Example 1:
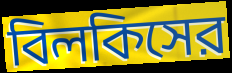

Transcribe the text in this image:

বিলকিসের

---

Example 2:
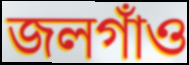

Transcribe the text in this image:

জলগাঁও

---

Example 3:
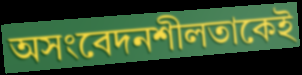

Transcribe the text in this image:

অসংবেদনশীলতাকেই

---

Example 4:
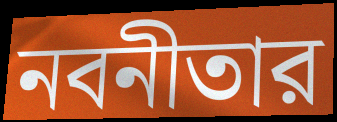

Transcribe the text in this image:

নবনীতার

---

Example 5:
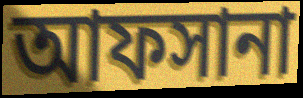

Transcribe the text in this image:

আফসানা